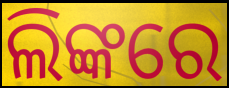
ଲିଙ୍କରେ